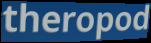
theropod